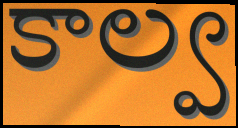
కాల్వ